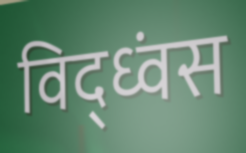
विद्ध्वंस